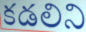
కడలిని